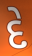
દે